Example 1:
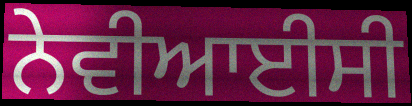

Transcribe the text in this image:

ਨੇਵੀਆਈਸੀ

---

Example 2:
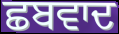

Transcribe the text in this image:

ਛਬਵਾਦ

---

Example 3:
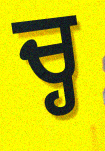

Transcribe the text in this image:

ਚ੍ਹ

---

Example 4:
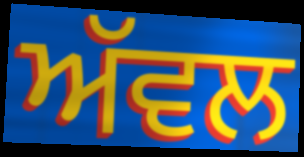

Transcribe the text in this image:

ਅੱਵਲ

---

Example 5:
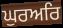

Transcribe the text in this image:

ਘੁਰਅਰਿ